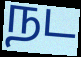
நட